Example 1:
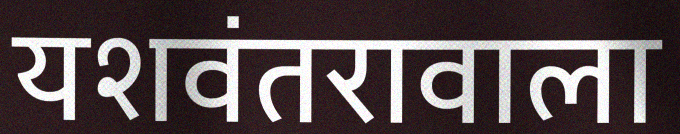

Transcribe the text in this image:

यशवंतरावाला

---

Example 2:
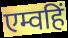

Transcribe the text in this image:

एम्वहिं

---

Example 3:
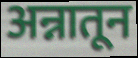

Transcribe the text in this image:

अन्नातून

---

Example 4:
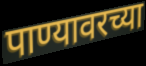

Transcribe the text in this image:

पाण्यावरच्या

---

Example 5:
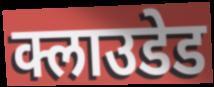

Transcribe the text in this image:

क्लाउडेड